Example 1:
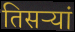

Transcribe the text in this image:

तिसऱ्यां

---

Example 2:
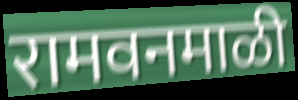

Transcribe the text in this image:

रामवनमाळी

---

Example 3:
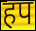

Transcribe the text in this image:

हप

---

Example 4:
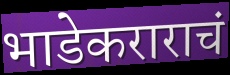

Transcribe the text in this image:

भाडेकराराचं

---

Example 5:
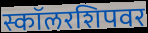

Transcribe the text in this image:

स्कॉलरशिपवर